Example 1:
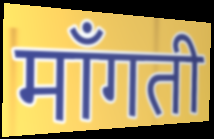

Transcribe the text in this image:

माँगती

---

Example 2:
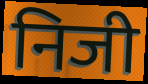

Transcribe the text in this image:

निजी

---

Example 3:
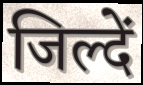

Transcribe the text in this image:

जिल्दें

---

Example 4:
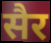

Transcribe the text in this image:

सैर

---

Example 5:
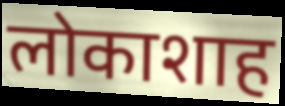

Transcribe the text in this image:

लोकाशाह